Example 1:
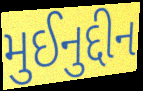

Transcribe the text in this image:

મુઈનુદ્દીન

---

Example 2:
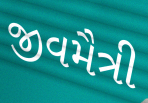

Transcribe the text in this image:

જીવમૈત્રી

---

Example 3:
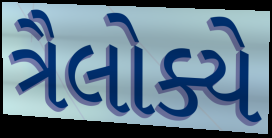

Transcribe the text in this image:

ત્રૈલોક્યે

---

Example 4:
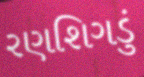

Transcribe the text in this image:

રણશિગડું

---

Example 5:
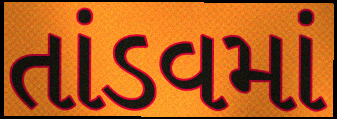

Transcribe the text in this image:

તાંડવમાં